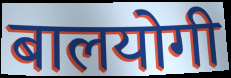
बालयोगी